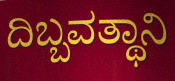
ದಿಬ್ಬವತ್ಥಾನಿ